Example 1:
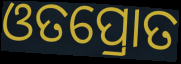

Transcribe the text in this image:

ଓତପ୍ରୋତ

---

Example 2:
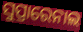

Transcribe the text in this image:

ସୁପ୍ରାରେନାଲ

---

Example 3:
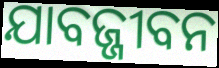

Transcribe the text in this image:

ଯାବଜ୍ଜୀବନ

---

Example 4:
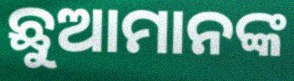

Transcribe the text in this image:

ଛୁଆମାନଙ୍କ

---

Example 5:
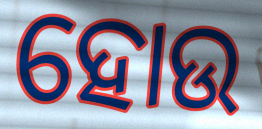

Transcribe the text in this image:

ହୋଉ